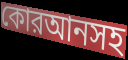
কোরআনসহ